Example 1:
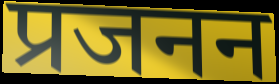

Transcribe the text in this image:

प्रजनन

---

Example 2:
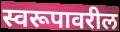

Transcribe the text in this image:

स्वरूपावरील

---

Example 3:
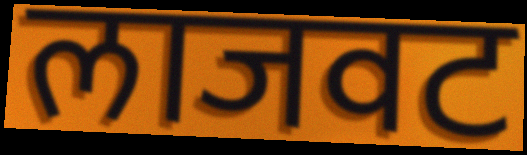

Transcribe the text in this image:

लाजवट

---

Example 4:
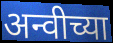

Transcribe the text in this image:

अन्वीच्या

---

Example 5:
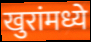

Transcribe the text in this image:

खुरांमध्ये